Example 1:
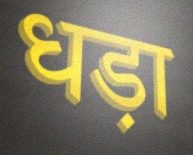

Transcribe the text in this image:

धड़ा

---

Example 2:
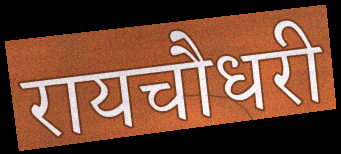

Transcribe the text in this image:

रायचौधरी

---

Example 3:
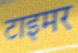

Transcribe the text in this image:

टाइमर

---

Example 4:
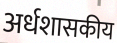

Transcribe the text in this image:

अर्धशासकीय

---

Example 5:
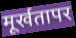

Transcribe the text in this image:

मूर्खतापर